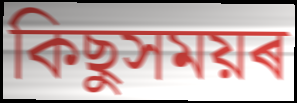
কিছুসময়ৰ